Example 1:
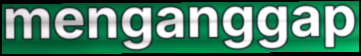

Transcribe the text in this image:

menganggap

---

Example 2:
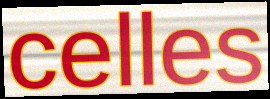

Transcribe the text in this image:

celles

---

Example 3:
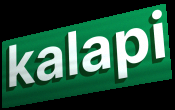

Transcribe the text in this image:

kalapi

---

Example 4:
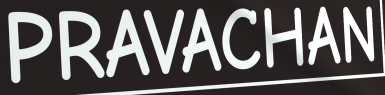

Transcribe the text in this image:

PRAVACHAN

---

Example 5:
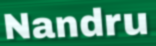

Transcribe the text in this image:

Nandru